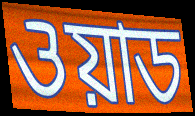
ওয়াড